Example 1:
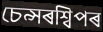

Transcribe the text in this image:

চেন্সৰশ্বিপৰ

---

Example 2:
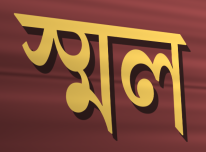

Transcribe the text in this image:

স্মল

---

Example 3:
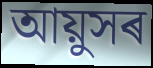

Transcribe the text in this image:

আয়ুসৰ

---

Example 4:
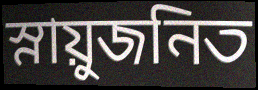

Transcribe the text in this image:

স্নায়ুজনিত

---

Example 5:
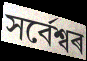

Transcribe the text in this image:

সৰ্বেশ্বৰ